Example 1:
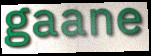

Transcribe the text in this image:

gaane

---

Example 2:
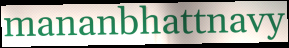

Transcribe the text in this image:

mananbhattnavy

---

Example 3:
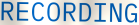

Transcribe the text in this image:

RECORDING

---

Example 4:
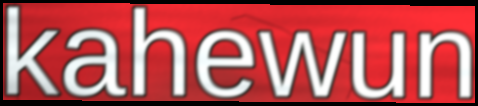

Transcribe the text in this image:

kahewun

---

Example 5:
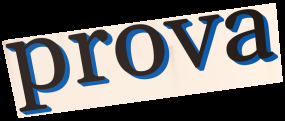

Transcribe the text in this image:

prova